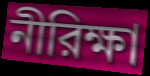
নীরিক্ষা